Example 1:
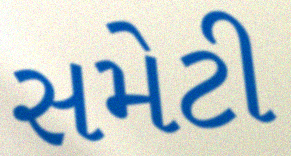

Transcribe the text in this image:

સમેટી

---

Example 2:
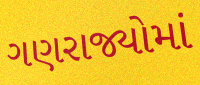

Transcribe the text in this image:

ગણરાજ્યોમાં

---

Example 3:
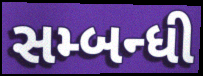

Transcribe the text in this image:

સમ્બન્ધી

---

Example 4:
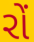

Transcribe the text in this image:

રોં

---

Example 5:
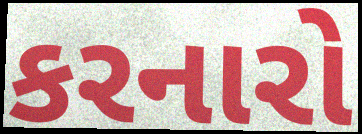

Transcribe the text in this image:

કરનારો